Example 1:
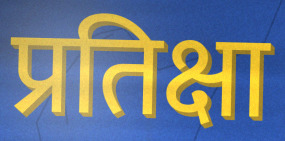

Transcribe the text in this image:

प्रतिक्षा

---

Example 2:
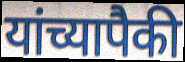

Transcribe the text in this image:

यांच्यापैकी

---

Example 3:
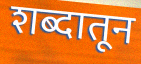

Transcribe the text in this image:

शब्दातून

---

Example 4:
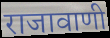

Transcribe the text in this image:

राजावाणी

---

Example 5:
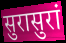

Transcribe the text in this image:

सुरासुरां